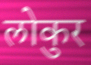
लोकुर